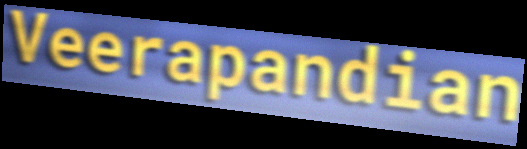
Veerapandian